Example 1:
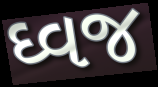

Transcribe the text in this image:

ઘ્વજ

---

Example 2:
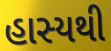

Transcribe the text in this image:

હાસ્યથી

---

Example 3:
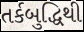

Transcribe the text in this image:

તર્કબુદ્ધિથી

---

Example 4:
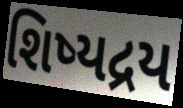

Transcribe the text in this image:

શિષ્યદ્રય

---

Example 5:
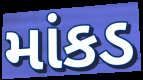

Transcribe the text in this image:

માંકડ